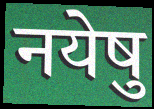
नयेषु